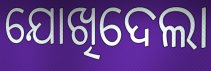
ଯୋଖିଦେଲା